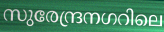
സുരേന്ദ്രനഗറിലെ